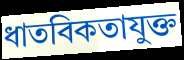
ধাতবিকতাযুক্ত